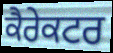
ਕੈਰੇਕਟਰ